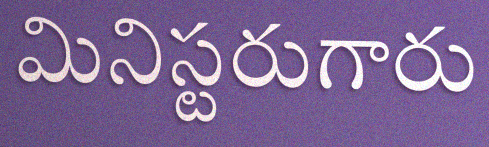
మినిస్టరుగారు